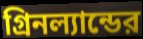
গ্রিনল্যান্ডের